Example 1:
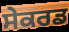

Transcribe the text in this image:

ਸੇਕਰਡ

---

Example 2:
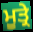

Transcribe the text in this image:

ਮੂਤ੍ਰੇ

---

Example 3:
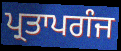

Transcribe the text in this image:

ਪ੍ਰਤਾਪਗੰਜ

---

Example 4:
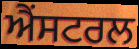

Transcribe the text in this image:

ਐਂਸਟਰਲ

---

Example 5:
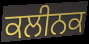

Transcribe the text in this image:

ਕਲੀਨਕ